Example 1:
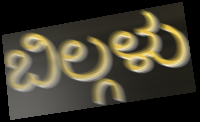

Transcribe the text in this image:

ಬಿಲ್ಗಳು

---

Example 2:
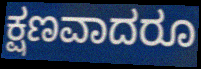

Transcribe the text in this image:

ಕ್ಷಣವಾದರೂ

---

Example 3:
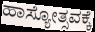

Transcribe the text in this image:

ಹಾಸ್ಯೋತ್ಸವಕ್ಕೆ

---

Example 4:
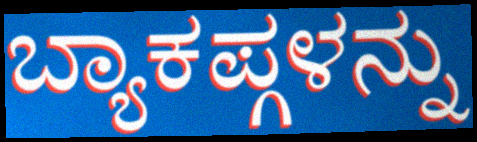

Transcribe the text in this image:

ಬ್ಯಾಕಪ್ಗಳನ್ನು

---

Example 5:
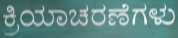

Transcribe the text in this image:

ಕ್ರಿಯಾಚರಣೆಗಳು